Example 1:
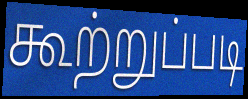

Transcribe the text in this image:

கூற்றுப்படி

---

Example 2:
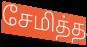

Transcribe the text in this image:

சேமித்த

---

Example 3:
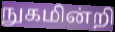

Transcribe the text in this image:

நுகமின்றி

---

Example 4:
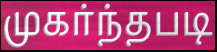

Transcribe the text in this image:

முகர்ந்தபடி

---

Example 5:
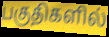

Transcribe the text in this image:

பகுதிகளில்